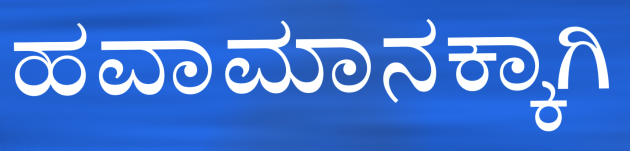
ಹವಾಮಾನಕ್ಕಾಗಿ